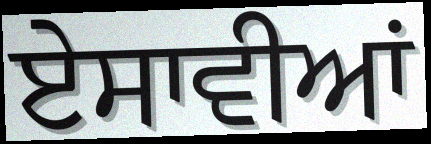
ਏਸਾਵੀਆਂ